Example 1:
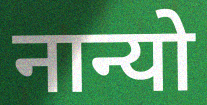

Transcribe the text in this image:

नान्यो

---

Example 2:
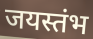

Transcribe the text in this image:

जयस्तंभ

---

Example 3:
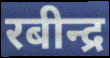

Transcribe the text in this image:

रबीन्द्र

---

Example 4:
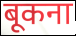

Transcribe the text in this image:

बूकना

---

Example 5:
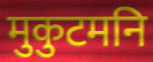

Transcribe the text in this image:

मुकुटमनि